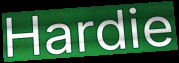
Hardie